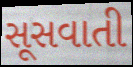
સૂસવાતી